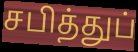
சபித்துப்